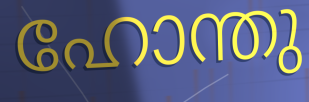
ഹോന്തു